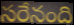
సరేనంది